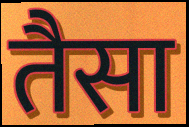
तैसा